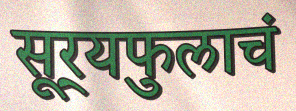
सूर्यफुलाचं